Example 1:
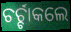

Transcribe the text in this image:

ଚର୍ଚ୍ଚାକଲେ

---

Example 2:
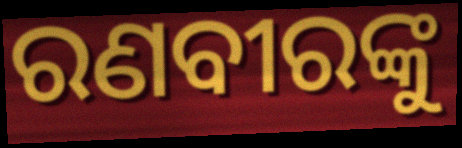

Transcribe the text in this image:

ରଣବୀରଙ୍କୁ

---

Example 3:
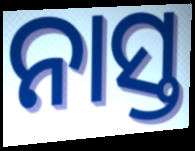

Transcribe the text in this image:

ନାସ୍ତ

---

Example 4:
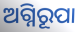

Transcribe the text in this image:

ଅଗ୍ନିରୂପା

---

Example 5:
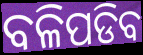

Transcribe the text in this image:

ବଳିପଡିବ